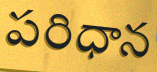
పరిధాన